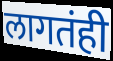
लागतंही